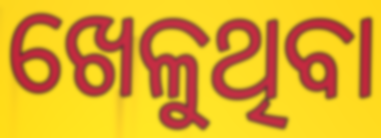
ଖେଳୁଥିବା